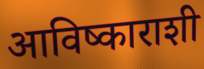
आविष्काराशी